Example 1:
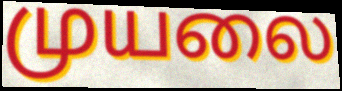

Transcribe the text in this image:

முயலை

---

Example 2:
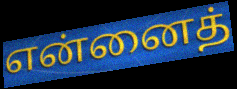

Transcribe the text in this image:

என்னைத்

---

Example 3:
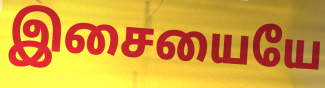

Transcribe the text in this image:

இசையையே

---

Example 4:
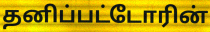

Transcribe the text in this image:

தனிப்பட்டோரின்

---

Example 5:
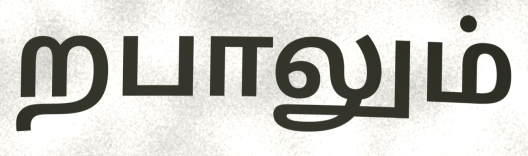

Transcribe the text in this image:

றபாலும்